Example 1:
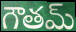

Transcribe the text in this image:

గౌతమ్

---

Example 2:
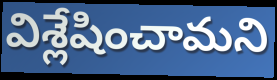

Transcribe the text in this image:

విశ్లేషించామని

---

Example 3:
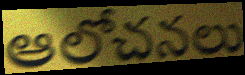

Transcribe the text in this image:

ఆలోచనలు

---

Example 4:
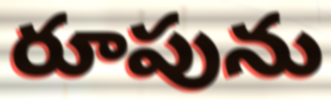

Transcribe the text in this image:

రూపును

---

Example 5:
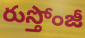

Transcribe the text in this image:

రుస్తోంజీ